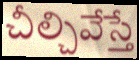
చీల్చివేస్తే